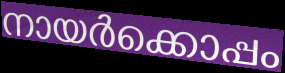
നായർക്കൊപ്പം